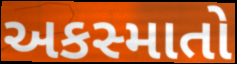
અકસ્માતો